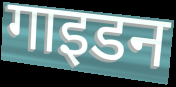
गाइडन